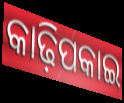
କାଢ଼ିପକାଇ